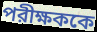
পরীক্ষককে